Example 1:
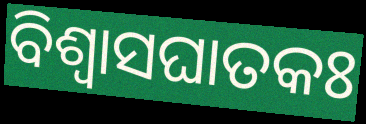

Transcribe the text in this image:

ବିଶ୍ୱାସଘାତକଃ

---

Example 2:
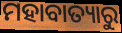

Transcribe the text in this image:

ମହାବାତ୍ୟାରୁ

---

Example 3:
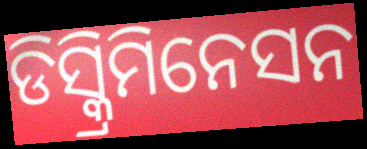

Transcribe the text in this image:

ଡିସ୍କ୍ରିମିନେସନ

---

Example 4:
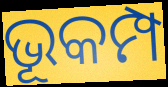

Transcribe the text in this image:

ଭୂକମ୍ପ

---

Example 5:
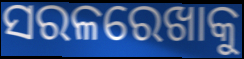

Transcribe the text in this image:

ସରଳରେଖାକୁ